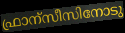
ഫ്രാന്സീസിനോടു